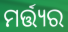
ମର୍ତ୍ତ୍ୟର